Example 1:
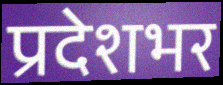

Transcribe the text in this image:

प्रदेशभर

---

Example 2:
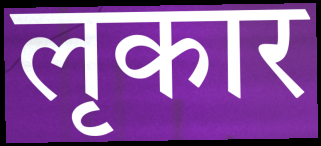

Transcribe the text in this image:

लृकार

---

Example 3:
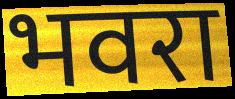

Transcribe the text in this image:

भवरा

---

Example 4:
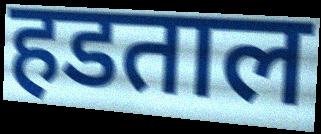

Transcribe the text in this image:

हडताल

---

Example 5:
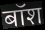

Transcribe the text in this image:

बॉश